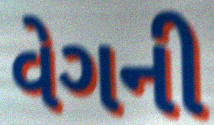
વેગની